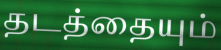
தடத்தையும்